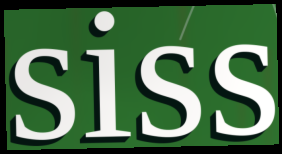
siss